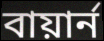
বায়ার্ন